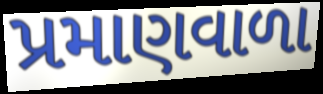
પ્રમાણવાળા